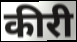
कीरी